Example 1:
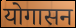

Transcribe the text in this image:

योगासन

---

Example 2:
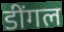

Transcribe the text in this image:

डींगल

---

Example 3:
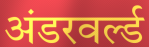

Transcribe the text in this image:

अंडरवर्ल्‍ड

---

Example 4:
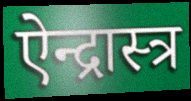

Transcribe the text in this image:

ऐन्द्रास्त्र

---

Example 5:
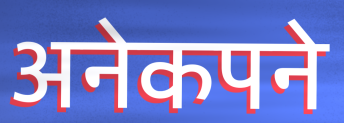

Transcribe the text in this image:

अनेकपने